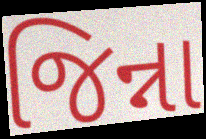
જિન્ના